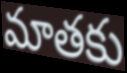
మాతకు